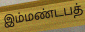
இம்மண்டபத்